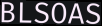
BLSOAS